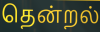
தென்றல்